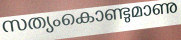
സത്യംകൊണ്ടുമാണു